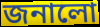
জনালো